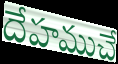
దేహముచే